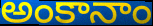
అంకానాం